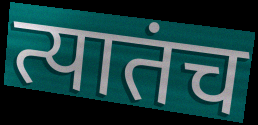
त्यातंच